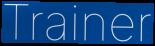
Trainer